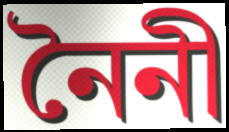
নৈনী